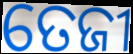
ତେଜୀ